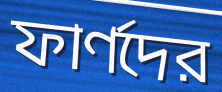
ফার্ণদের